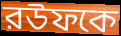
রউফকে